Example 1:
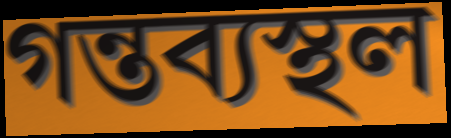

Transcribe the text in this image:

গন্তব্যস্থল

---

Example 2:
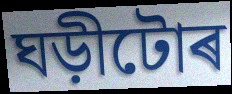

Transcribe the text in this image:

ঘড়ীটোৰ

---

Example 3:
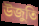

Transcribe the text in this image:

উজুতি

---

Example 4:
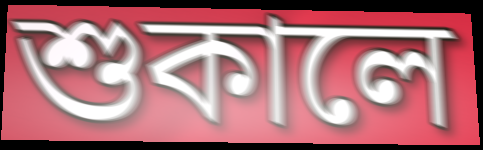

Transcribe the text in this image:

শুকালে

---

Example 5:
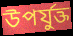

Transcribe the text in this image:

উপৰ্যুক্ত